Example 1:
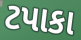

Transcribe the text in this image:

ટપાકા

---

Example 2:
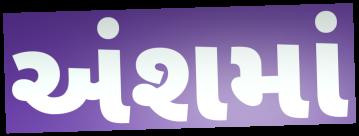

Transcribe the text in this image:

અંશમાં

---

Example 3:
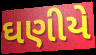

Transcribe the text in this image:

ઘણીયે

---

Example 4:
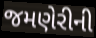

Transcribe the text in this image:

જમણેરીની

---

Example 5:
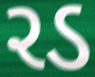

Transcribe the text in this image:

રડ